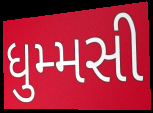
ધુમ્મસી